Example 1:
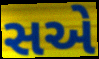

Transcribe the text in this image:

સએ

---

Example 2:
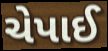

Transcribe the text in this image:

ચેપાઈ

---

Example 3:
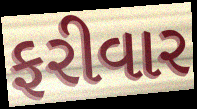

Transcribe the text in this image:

ફરીવાર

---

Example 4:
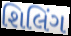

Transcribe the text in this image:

શિલિંગ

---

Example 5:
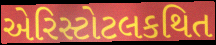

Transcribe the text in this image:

એરિસ્ટોટલકથિત